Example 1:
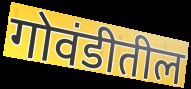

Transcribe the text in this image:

गोवंडीतील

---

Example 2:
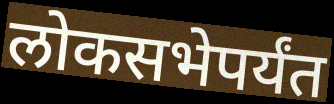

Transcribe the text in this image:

लोकसभेपर्यंत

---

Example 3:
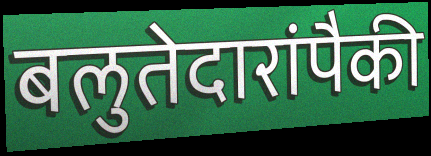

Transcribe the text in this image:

बलुतेदारांपैकी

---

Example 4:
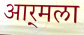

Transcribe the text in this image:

आर्मला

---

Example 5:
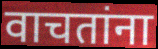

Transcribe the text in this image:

वाचतांना